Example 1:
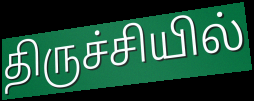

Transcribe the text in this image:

திருச்சியில்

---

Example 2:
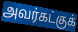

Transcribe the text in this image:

அவர்கட்குக்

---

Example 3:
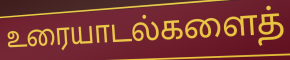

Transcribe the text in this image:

உரையாடல்களைத்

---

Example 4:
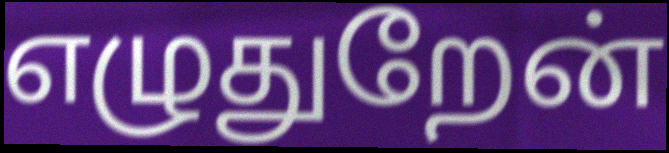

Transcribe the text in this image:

எழுதுறேன்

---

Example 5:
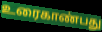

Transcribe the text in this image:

உரைகாண்பது